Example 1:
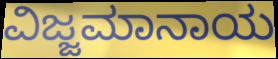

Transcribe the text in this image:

ವಿಜ್ಜಮಾನಾಯ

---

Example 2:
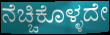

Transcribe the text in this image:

ನೆಚ್ಚಿಕೊಳ್ಳದೇ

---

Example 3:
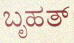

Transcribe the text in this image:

ಬೃಹತ್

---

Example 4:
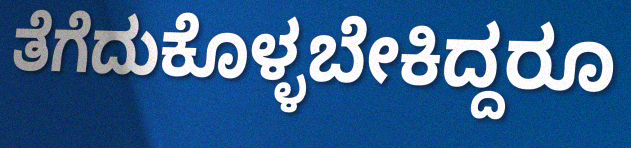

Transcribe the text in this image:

ತೆಗೆದುಕೊಳ್ಳಬೇಕಿದ್ದರೂ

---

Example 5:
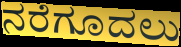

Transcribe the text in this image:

ನರೆಗೂದಲು